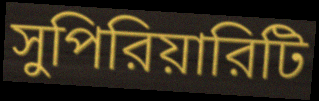
সুপিরিয়ারিটি